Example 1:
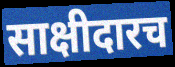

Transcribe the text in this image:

साक्षीदारच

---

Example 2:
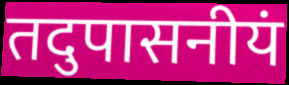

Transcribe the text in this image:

तदुपासनीयं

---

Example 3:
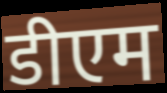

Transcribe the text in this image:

डीएम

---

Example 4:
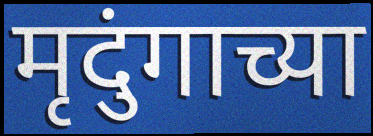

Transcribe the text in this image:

मृदुंगाच्या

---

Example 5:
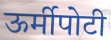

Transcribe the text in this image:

ऊर्मीपोटी